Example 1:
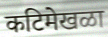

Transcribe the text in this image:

कटिमेखळा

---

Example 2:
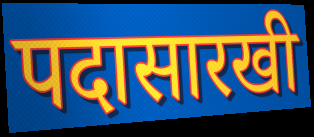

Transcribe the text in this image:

पदासारखी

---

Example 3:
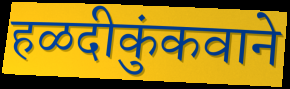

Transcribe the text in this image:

हळदीकुंकवाने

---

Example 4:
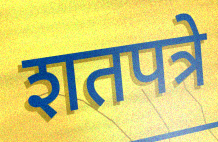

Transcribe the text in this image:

शतपत्रे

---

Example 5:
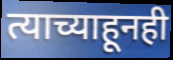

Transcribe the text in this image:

त्याच्याहूनही